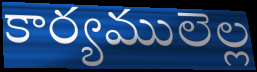
కార్యములెల్ల